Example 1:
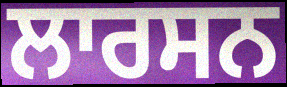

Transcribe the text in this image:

ਲਾਰਸਨ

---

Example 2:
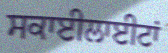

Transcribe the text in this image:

ਸਕਾਈਲਾਈਟਾਂ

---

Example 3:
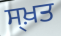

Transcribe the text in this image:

ਸ੍ਖ਼ਤ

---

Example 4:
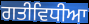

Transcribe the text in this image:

ਗਤੀਵਿਧੀਆ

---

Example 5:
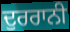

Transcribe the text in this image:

ਦੁਰਰਾਨੀ